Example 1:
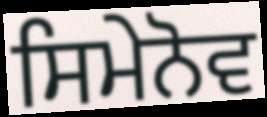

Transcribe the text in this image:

ਸਿਮੇਨੋਵ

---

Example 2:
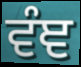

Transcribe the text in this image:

ਵੰਞ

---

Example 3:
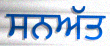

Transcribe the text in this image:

ਸਨਅੱਤ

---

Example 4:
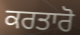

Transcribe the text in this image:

ਕਰਤਾਰੋ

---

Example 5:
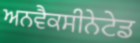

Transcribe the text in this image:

ਅਨਵੈਕਸੀਨੇਟੇਡ